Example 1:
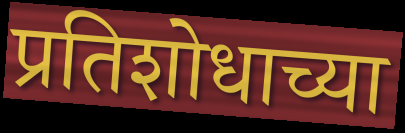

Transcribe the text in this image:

प्रतिशोधाच्या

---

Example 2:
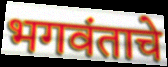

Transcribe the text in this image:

भगवंताचे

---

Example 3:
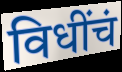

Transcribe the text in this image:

विधींचं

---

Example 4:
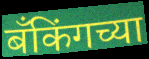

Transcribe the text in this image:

बँकिंगच्या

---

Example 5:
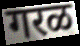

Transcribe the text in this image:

गरळ